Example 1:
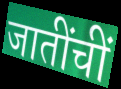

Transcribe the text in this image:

जातींचीं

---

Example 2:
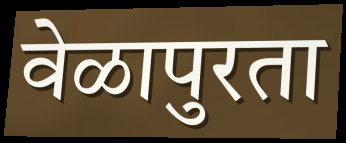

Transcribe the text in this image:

वेळापुरता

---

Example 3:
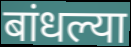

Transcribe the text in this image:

बांधल्या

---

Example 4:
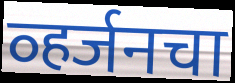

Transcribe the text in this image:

व्हर्जनचा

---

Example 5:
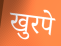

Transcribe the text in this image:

खुरपे